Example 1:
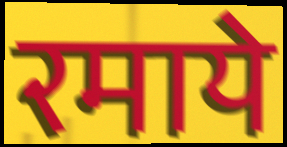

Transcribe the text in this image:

रमाये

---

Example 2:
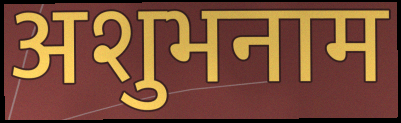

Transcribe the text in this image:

अशुभनाम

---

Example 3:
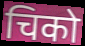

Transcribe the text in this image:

चिको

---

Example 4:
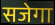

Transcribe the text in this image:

सजेगा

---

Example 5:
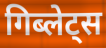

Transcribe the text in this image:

गिब्लेट्स